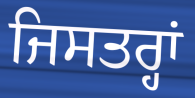
ਜਿਸਤਰ੍ਹਾਂ